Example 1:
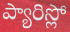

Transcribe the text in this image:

ప్యారిస్లో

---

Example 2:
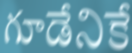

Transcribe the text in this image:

గూడేనికే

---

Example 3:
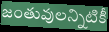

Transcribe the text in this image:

జంతువులన్నిటికీ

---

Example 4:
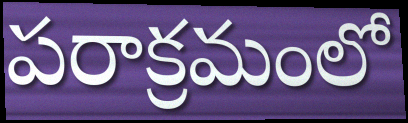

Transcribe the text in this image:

పరాక్రమంలో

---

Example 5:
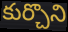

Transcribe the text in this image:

కుర్చొని